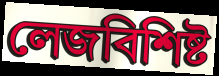
লেজবিশিষ্ট